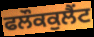
ਫਲੌਕਕੁਲੈਂਟ